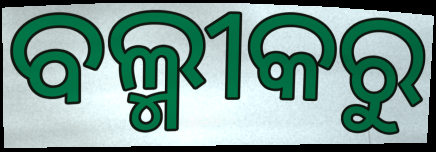
ବଲ୍ମୀକରୁ